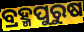
ବ୍ରହ୍ମପୁରୁଷ